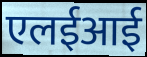
एलईआई